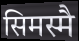
सिमस्मै